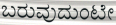
ಬರುವುದುಂಟೇ